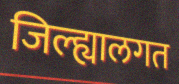
जिल्ह्यालगत